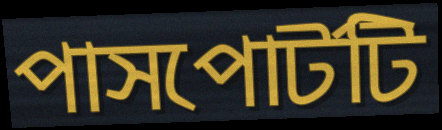
পাসপোর্টটি